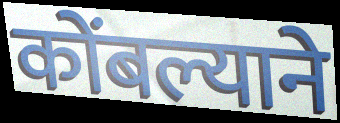
कोंबल्याने